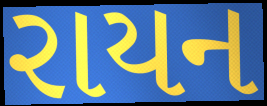
રાયન